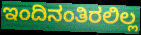
ಇಂದಿನಂತಿರಲಿಲ್ಲ